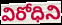
విరోధిని